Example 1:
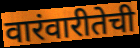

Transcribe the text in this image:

वारंवारीतेची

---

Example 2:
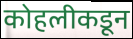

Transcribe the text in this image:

कोहलीकडून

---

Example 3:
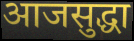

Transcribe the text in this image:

आजसुद्धा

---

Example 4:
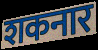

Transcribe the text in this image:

शकनार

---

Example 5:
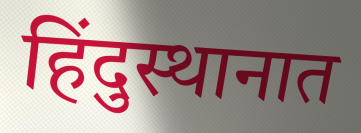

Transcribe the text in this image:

हिंदुस्थानात